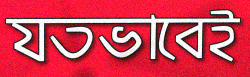
যতভাবেই